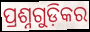
ପ୍ରଶ୍ନଗୁଡ଼ିକର